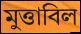
মুত্তাবিল